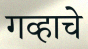
गव्हाचे